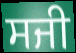
ਸਜੀ